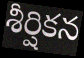
శీర్షికన